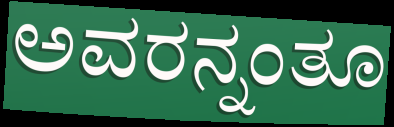
ಅವರನ್ನಂತೂ